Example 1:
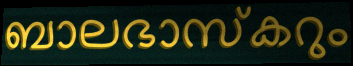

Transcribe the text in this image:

ബാലഭാസ്കറും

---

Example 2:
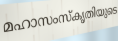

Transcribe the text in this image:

മഹാസംസ്കൃതിയുടെ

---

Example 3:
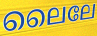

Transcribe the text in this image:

ലൈലേ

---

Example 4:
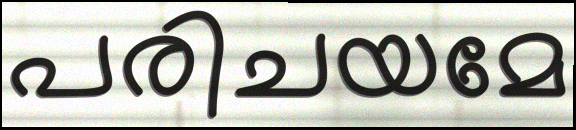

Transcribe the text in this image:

പരിചയമേ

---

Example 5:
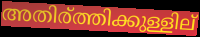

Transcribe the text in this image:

അതിര്ത്തിക്കുള്ളില്